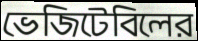
ভেজিটেবিলের